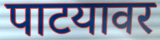
पाटयावर